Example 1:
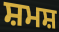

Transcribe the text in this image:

ਸ਼ਮਸ਼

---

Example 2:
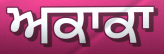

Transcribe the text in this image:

ਅਕਾਕਾ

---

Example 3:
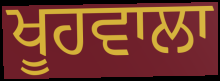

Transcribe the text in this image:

ਖੂਹਵਾਲਾ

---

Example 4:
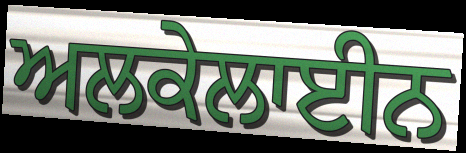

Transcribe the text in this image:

ਅਲਕੇਲਾਈਨ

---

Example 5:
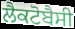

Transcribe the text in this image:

ਲੈਕਟੋਬੈਸੀ